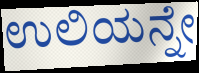
ಉಲಿಯನ್ನೇ